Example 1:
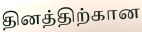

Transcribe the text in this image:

தினத்திற்கான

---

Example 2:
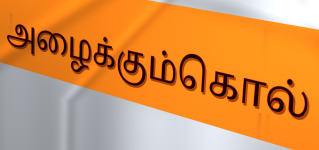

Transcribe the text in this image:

அழைக்கும்கொல்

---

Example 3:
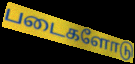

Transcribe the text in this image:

படைகளோடு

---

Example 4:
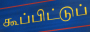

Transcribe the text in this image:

கூப்பிட்டுப்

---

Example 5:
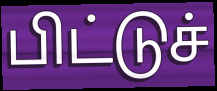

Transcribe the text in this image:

பிட்டுச்